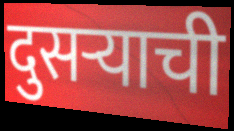
दुसऱ्याची